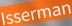
Isserman